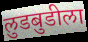
लुडबुडीला